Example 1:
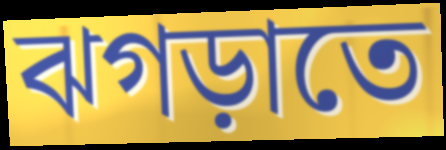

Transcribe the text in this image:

ঝগড়াতে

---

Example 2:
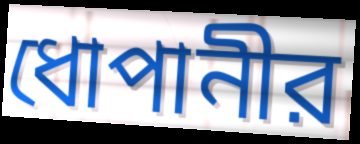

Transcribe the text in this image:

ধোপানীর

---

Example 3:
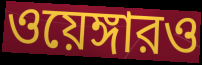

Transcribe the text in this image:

ওয়েঙ্গারও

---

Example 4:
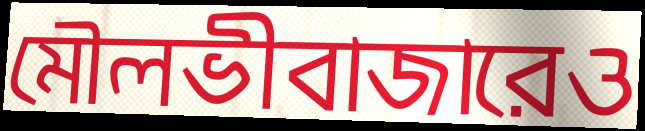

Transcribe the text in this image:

মৌলভীবাজারেও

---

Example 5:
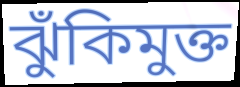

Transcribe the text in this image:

ঝুঁকিমুক্ত